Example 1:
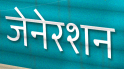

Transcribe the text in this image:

जेनेरशन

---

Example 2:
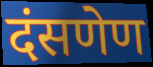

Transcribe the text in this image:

दंसणेण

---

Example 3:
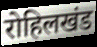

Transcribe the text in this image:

रोहिलखंड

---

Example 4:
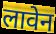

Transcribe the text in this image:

लावेन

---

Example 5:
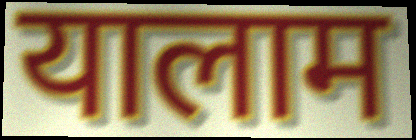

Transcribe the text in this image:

यालाम